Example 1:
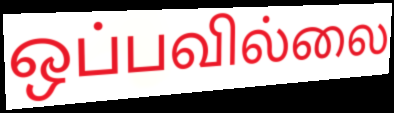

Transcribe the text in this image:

ஒப்பவில்லை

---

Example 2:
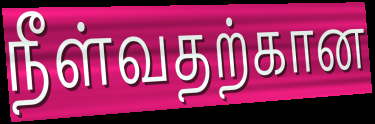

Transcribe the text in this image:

நீள்வதற்கான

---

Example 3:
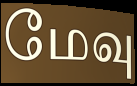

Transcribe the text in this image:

மேவு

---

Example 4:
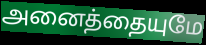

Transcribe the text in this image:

அனைத்தையுமே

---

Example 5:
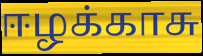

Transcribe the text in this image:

ஈழக்காசு